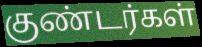
குண்டர்கள்